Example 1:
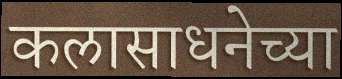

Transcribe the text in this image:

कलासाधनेच्या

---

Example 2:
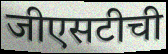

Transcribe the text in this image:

जीएसटीची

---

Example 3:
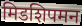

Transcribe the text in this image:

मिडशिपमन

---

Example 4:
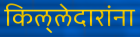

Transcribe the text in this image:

किल्लेदारांना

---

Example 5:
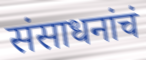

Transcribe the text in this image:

संसाधनांचं